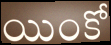
యింకో